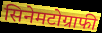
सिनेमटोग्राफी